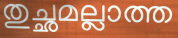
തുച്ഛമല്ലാത്ത